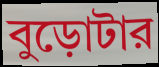
বুড়োটার